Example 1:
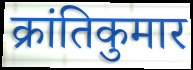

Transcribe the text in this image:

क्रांतिकुमार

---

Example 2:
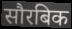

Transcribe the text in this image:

सौरबिक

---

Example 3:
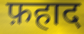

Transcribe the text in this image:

फ़हाद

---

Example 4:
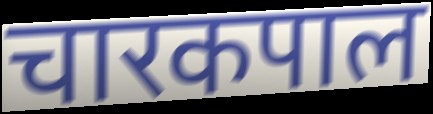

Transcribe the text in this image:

चारकपाल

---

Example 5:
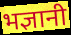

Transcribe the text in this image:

भज्ञानी